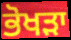
ਭੋਖੜਾ